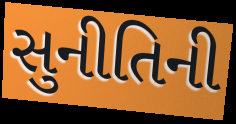
સુનીતિની